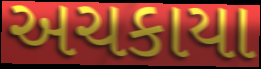
અચકાયા